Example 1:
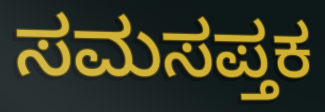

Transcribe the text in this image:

ಸಮಸಪ್ತಕ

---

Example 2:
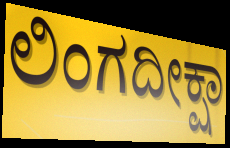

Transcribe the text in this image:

ಲಿಂಗದೀಕ್ಷಾ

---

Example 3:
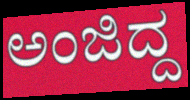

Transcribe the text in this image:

ಅಂಜಿದ್ದ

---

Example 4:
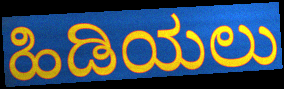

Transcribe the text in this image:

ಹಿಡಿಯಲು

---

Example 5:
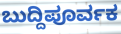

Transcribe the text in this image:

ಬುದ್ದಿಪೂರ್ವಕ